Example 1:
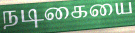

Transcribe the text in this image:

நடிகையை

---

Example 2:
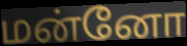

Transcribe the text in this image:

மன்னோ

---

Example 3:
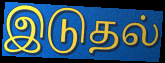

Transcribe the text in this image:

இடுதல்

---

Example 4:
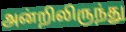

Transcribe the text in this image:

அன்றிலிருந்து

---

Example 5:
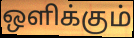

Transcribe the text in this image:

ஒளிக்கும்